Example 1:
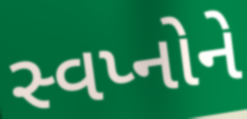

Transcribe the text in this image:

સ્વપ્નોને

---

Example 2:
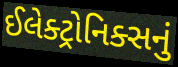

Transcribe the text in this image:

ઈલેક્ટ્રોનિક્સનું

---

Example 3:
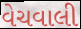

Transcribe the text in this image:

વેચવાલી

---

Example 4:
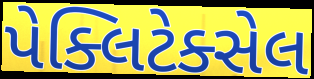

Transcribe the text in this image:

પેક્લિટેક્સેલ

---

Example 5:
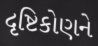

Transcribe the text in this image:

દૃષ્ટિકોણને